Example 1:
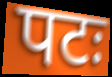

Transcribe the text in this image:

पटः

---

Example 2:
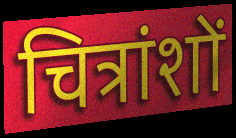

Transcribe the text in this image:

चित्रांशों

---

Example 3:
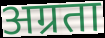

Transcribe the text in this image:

अग्रता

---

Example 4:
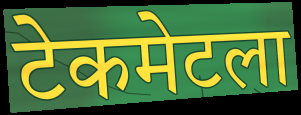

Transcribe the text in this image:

टेकमेटला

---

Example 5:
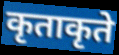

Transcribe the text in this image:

कृताकृते